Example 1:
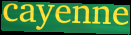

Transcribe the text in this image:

cayenne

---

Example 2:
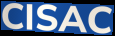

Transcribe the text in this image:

CISAC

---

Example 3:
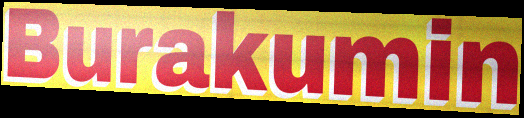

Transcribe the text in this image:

Burakumin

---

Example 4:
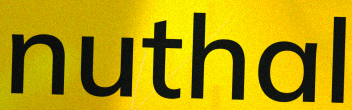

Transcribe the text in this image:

nuthal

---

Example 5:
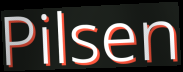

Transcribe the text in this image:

Pilsen